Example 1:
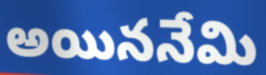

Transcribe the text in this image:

అయిననేమి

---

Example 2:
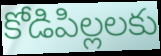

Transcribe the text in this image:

కోడిపిల్లలకు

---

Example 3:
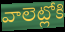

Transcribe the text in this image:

వాలెట్లోకి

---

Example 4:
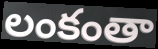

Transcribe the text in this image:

లంకంతా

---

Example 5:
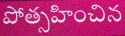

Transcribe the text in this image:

పోత్సహించిన